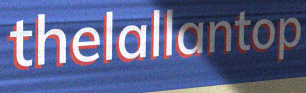
thelallantop